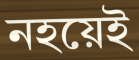
নহয়েই